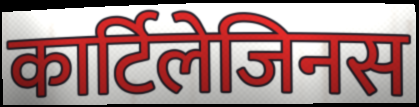
कार्टिलेजिनस